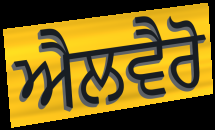
ਐਲਵੈਰੋ